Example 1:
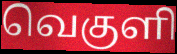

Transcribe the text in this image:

வெகுளி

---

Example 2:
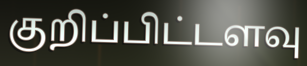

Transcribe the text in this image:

குறிப்பிட்டளவு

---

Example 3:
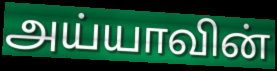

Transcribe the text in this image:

அய்யாவின்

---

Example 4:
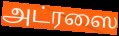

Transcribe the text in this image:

அட்ரஸை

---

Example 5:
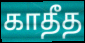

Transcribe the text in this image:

காதீத